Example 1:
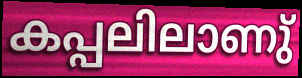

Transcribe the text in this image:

കപ്പലിലാണു്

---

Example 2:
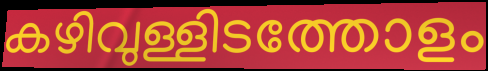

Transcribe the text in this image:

കഴിവുള്ളിടത്തോളം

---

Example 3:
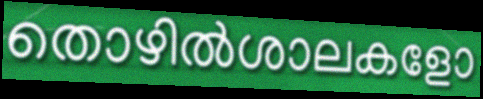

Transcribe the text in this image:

തൊഴിൽശാലകളോ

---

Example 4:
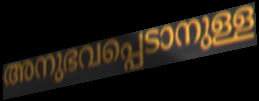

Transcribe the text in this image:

അനുഭവപ്പെടാനുള്ള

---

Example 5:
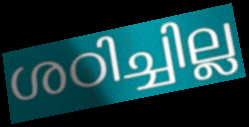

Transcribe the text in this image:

ശഠിച്ചില്ല